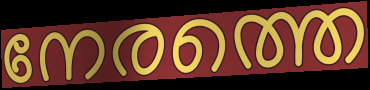
നേരത്തെ